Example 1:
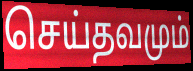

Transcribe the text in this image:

செய்தவமும்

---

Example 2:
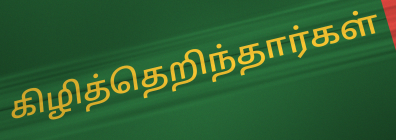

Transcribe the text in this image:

கிழித்தெறிந்தார்கள்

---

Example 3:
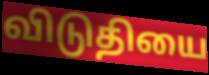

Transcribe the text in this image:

விடுதியை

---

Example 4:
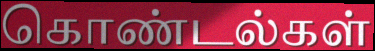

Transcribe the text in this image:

கொண்டல்கள்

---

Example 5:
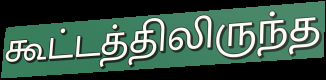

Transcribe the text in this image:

கூட்டத்திலிருந்த